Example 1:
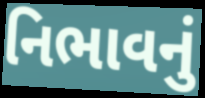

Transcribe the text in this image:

નિભાવનું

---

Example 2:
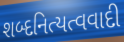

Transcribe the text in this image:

શબ્દનિત્યત્વવાદી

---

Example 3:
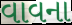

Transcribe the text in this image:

વાવના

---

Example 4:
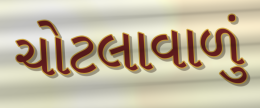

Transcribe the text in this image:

ચોટલાવાળું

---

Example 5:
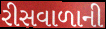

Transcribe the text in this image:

રીસવાળાની